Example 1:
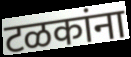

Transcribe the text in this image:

टळकांना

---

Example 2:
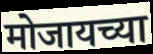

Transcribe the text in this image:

मोजायच्या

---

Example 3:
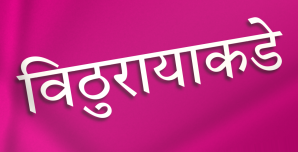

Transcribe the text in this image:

विठुरायाकडे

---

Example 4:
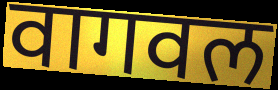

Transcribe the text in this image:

वागवल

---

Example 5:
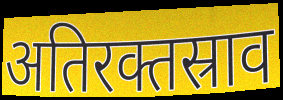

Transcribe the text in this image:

अतिरक्तस्राव